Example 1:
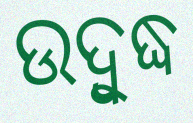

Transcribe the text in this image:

ଉଦ୍ୱୁଦ୍ଧ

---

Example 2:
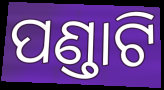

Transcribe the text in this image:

ପଣ୍ଡାଟି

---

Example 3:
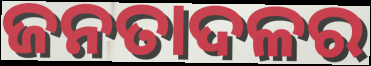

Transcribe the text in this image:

ଜନତାଦଳର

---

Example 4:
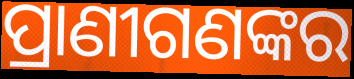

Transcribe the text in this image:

ପ୍ରାଣୀଗଣଙ୍କର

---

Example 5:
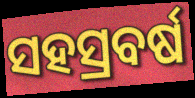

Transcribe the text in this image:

ସହସ୍ରବର୍ଷ